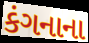
કંગનાના